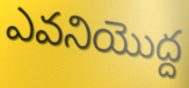
ఎవనియొద్ద